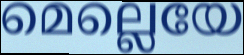
മെല്ലെയേ